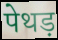
पेथड़